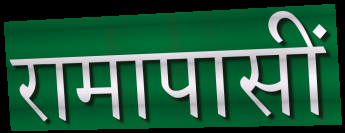
रामापासीं